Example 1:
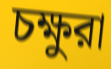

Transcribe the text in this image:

চক্ষুরা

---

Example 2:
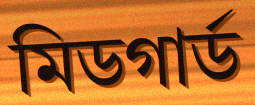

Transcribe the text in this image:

মিডগার্ড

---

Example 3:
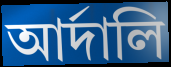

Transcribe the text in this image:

আর্দালি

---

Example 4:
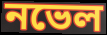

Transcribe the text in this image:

নভেল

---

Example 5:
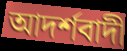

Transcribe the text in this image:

আদর্শবাদী